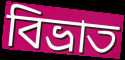
বিভ্ৰাত